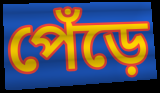
পেঁড়ে